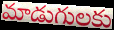
మాడుగులకు